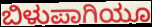
ಬಿಳುಪಾಗಿಯೂ